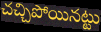
చచ్చిపోయినట్టు